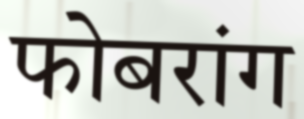
फोबरांग